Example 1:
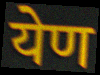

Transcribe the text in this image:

येण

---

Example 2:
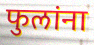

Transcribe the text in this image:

फुलांना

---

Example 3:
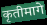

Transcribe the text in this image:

कृतीमागे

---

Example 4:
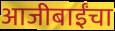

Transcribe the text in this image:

आजीबाईंचा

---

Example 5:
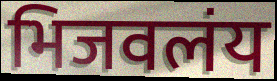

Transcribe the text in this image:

भिजवलंय